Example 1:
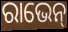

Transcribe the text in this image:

ରାଭେନ୍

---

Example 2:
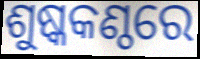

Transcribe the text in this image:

ଶୁଷ୍କକଣ୍ଠରେ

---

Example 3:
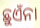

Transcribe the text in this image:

ଛୁଏଁନା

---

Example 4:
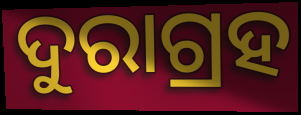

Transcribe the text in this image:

ଦୁରାଗ୍ରହ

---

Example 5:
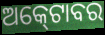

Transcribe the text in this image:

ଅକ୍‍ଟୋବର